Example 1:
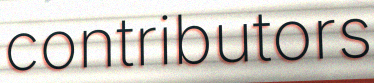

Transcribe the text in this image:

contributors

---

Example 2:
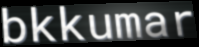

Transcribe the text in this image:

bkkumar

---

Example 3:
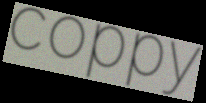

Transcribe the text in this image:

coppy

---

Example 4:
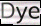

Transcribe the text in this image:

Dye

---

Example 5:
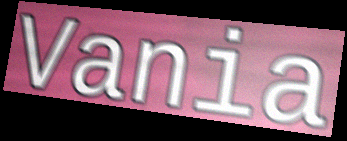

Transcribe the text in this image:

Vania